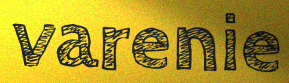
varenie